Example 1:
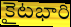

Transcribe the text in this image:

కైటభారి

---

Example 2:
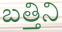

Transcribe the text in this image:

బత్తిని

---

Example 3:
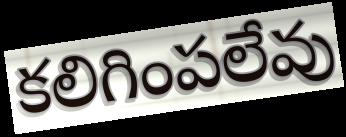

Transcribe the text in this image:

కలిగింపలేవు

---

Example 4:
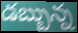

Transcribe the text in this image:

డబ్బున్న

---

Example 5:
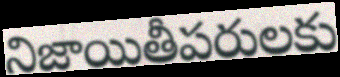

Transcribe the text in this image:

నిజాయితీపరులకు